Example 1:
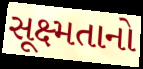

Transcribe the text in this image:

સૂક્ષ્મતાનો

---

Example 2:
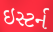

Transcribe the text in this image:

ઇસ્ટર્ન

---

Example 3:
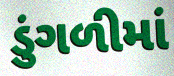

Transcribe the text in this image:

ડુંગળીમાં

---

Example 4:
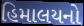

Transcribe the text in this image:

હિમાલયનો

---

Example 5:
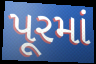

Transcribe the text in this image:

પૂરમાં